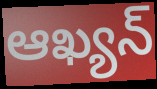
ఆఖ్యన్